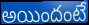
అయిందంటే